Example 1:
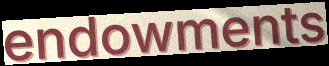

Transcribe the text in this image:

endowments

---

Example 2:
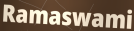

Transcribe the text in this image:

Ramaswami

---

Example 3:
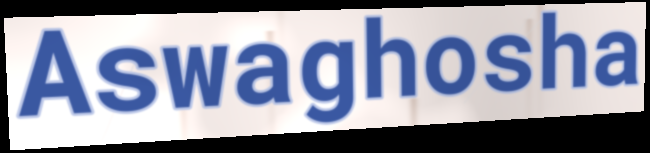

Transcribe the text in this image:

Aswaghosha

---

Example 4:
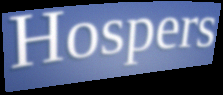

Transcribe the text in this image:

Hospers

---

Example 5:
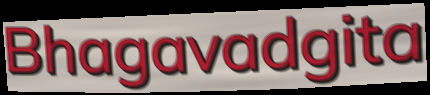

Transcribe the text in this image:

Bhagavadgita